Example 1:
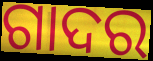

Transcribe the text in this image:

ଗାଦର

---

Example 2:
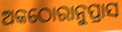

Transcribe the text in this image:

ଅକଠୋରାନୁପ୍ରାସ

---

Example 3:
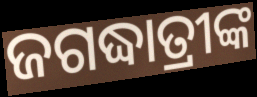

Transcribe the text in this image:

ଜଗଦ୍ଧାତ୍ରୀଙ୍କ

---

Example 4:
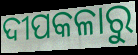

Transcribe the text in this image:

ଦୀପକଳାରୁ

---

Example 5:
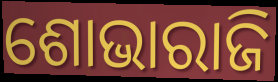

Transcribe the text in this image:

ଶୋଭାରାଜି